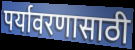
पर्यावरणासाठी